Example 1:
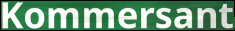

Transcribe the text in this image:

Kommersant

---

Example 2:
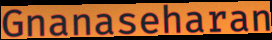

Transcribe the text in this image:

Gnanaseharan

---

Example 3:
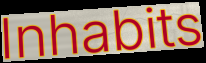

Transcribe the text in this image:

Inhabits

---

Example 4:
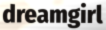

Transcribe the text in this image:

dreamgirl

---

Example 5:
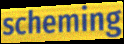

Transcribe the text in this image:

scheming